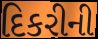
દિકરીની